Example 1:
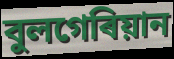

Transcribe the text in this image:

বুলগেৰিয়ান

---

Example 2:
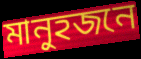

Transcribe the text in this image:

মানুহজনে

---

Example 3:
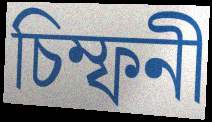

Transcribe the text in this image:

চিম্ফনী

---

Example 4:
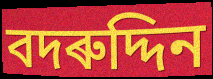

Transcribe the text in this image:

বদৰুদ্দিন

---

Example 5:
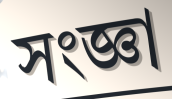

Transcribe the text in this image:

সংজ্ঞা